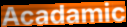
Acadamic